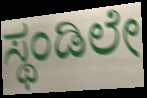
ಸ್ಥಂಡಿಲೇ